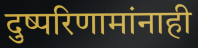
दुष्परिणामांनाही